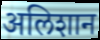
अलिशान